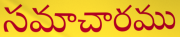
సమాచారము